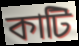
কাটি